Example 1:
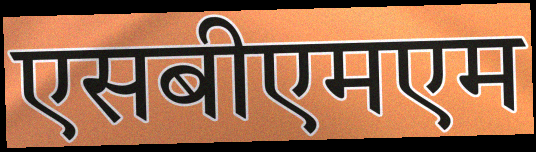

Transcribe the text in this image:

एसबीएमएम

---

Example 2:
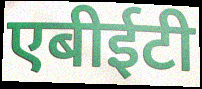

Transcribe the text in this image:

एबीईटी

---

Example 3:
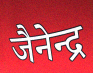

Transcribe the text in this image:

जैनेन्‍द्र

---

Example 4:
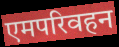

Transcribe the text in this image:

एमपरिवहन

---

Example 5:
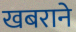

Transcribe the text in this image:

खबराने